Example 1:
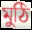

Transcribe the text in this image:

মুঠি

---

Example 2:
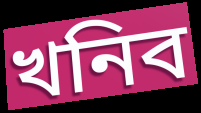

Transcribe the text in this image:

খনিব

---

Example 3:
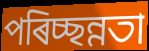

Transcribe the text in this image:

পৰিচ্ছন্নতা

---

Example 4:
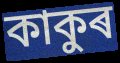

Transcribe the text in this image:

কাকুৰ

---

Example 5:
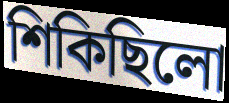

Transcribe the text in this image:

শিকিছিলো